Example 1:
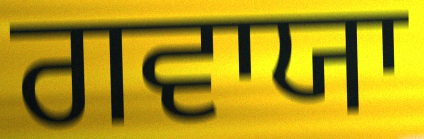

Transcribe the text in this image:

ਗਵਾਯਾ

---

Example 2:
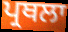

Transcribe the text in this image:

ਪ੍ਰਥਲਾ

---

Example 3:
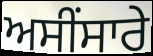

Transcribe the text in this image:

ਅਸੀਂਸਾਰੇ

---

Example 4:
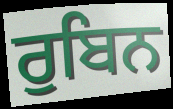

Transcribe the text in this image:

ਰੁਬਿਨ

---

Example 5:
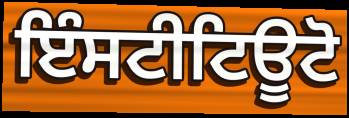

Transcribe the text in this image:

ਇੰਸਟੀਟਿਊਟੋ